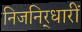
निजनिर्धारीं